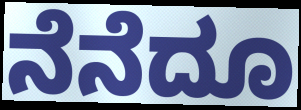
ನೆನೆದೂ